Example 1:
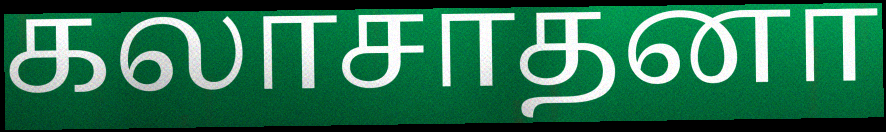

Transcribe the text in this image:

கலாசாதனா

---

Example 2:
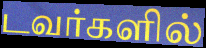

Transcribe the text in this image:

டவர்களில்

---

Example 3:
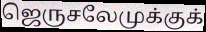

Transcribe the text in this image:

ஜெருசலேமுக்குக்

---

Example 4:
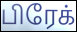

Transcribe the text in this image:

பிரேக்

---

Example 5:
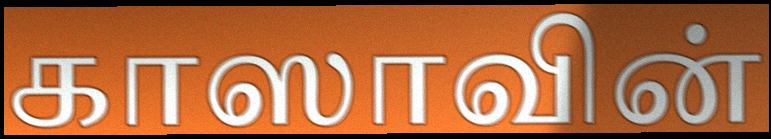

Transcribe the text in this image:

காஸாவின்